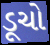
ડૂચો